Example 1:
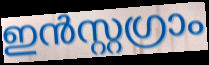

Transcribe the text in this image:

ഇൻസ്റ്റഗ്രാം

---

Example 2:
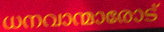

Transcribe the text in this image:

ധനവാന്മാരോട്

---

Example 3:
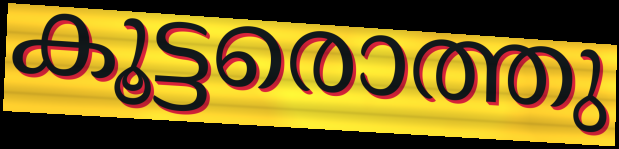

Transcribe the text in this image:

കൂട്ടരൊത്തു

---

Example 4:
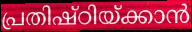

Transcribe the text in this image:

പ്രതിഷ്ഠിയ്ക്കാൻ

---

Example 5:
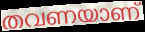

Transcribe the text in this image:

തവണയാണ്